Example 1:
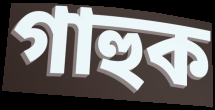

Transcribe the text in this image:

গাহুক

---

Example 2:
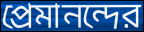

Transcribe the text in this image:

প্রেমানন্দের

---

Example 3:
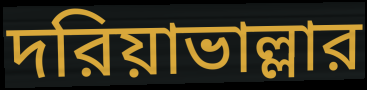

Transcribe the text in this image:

দরিয়াভাল্লার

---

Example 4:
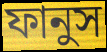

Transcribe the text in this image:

ফানুস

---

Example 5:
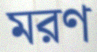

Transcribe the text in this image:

মরণ